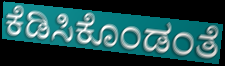
ಕೆಡಿಸಿಕೊಂಡಂತೆ